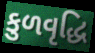
કુળવૃદ્ધિ